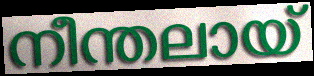
നീന്തലായ്